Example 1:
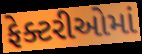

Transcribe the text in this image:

ફેક્ટરીઓમાં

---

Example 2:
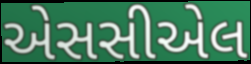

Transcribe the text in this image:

એસસીએલ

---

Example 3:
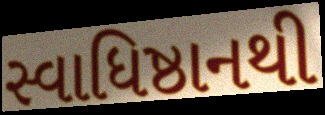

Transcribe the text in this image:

સ્વાધિષ્ઠાનથી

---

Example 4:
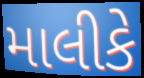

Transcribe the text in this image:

માલીકે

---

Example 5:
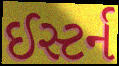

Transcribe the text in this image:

ઈસ્ટર્ન